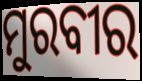
ମୁରବୀର